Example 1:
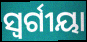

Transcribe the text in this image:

ସ୍ବର୍ଗୀୟା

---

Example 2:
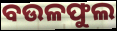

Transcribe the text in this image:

ବଉଳଫୁଲ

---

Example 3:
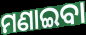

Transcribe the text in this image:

ମଣାଇବା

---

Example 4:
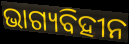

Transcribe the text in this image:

ଭାଗ୍ୟବିହୀନ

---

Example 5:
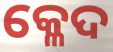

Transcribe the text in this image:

କ୍ଳେଦ